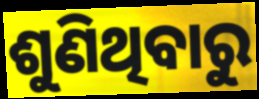
ଶୁଣିଥିବାରୁ